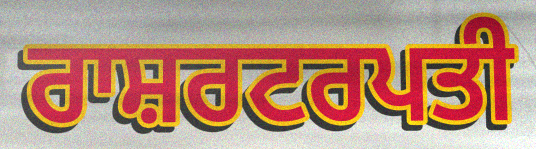
ਰਾਸ਼ਰਟਰਪਤੀ